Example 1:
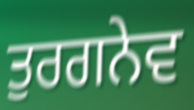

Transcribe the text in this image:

ਤੁਰਗਨੇਵ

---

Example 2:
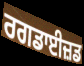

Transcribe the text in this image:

ਰਗਡਾਈਜ਼ਡ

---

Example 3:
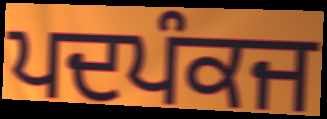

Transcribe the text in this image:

ਪਦਪੰਕਜ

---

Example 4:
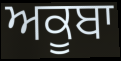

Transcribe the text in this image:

ਅਕੂਬਾ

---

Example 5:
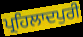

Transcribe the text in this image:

ਪ੍ਰਹਿਲਾਦਪੁਰੀ